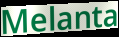
Melanta